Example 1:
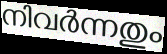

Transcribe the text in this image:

നിവർന്നതും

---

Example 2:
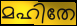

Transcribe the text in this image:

മഹിതേ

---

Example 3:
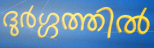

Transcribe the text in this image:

ദുർഗ്ഗത്തിൽ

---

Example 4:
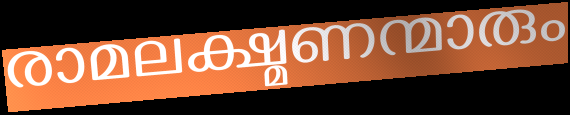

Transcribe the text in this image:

രാമലക്ഷ്മണന്മാരും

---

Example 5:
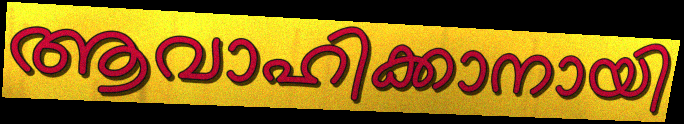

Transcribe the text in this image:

ആവാഹിക്കാനായി